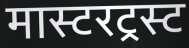
मास्टरट्रस्ट